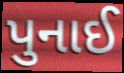
પુનાઈ